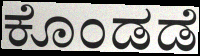
ಕೊಂಡಡೆ